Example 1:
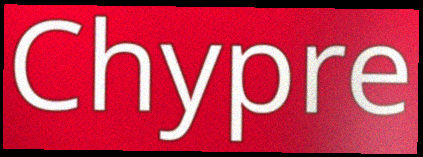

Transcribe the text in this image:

Chypre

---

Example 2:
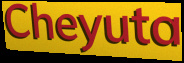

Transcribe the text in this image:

Cheyuta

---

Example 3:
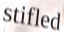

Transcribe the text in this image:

stifled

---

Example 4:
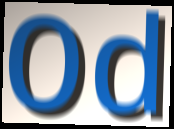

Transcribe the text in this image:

Od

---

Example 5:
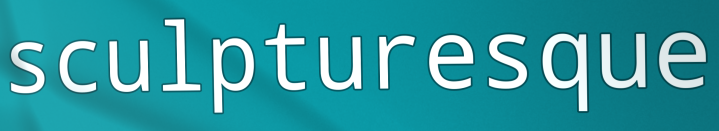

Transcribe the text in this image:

sculpturesque